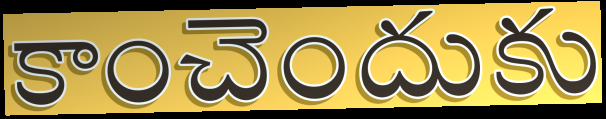
కాంచెందుకు